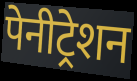
पेनीट्रेशन